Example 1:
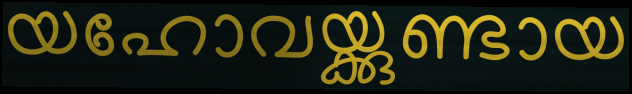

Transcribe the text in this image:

യഹോവയ്ക്കുണ്ടായ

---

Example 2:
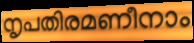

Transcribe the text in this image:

നൃപതിരമണീനാം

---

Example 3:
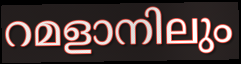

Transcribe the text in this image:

റമളാനിലും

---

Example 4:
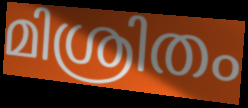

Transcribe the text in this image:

മിശ്രിതം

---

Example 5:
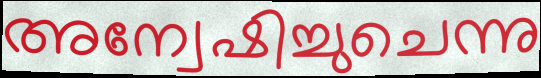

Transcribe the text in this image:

അന്വേഷിച്ചുചെന്നു